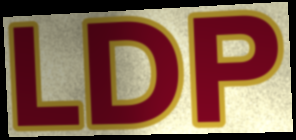
LDP